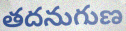
తదనుగుణ